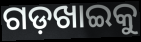
ଗଡ଼ଖାଇକୁ